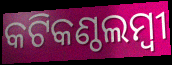
କଟିକଣ୍ଠଲମ୍ବୀ